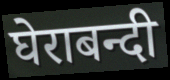
घेराबन्दी